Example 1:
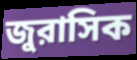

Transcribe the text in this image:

জুরাসিক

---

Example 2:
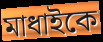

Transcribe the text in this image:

মাধাইকে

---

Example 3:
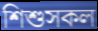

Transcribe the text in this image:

শিশুসকল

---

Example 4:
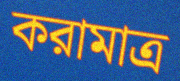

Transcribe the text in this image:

করামাত্র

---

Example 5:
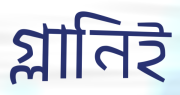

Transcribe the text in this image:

গ্লানিই